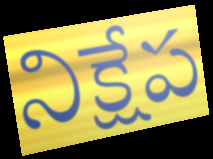
నిక్షేప